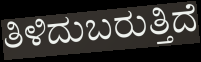
ತಿಳಿದುಬರುತ್ತಿದೆ